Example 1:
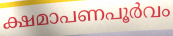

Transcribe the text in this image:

ക്ഷമാപണപൂർവം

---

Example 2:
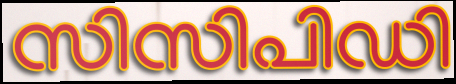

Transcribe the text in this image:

സിസിപിഡി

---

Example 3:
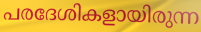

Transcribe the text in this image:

പരദേശികളായിരുന്ന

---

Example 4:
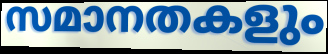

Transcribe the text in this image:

സമാനതകളും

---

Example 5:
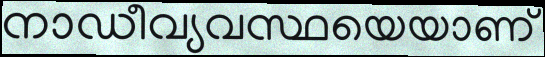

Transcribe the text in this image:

നാഡീവ്യവസ്ഥയെയാണ്